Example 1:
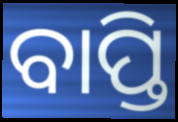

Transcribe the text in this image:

ବାପ୍ତି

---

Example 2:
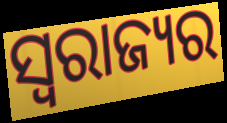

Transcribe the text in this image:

ସ୍ବରାଜ୍ୟର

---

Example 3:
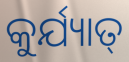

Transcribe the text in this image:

କୁର୍ଯ୍ୟାତ୍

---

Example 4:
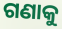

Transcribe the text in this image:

ଗଣାକୁ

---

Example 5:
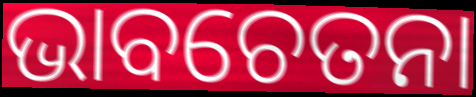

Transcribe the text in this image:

ଭାବଚେତନା